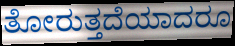
ತೋರುತ್ತದೆಯಾದರೂ